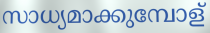
സാധ്യമാക്കുമ്പോള്